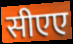
सीएए